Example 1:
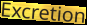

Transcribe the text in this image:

Excretion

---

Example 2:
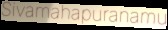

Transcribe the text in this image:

Sivamahapuranamu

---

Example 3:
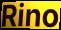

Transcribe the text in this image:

Rino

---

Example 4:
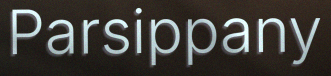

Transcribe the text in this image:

Parsippany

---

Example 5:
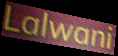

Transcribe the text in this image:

Lalwani